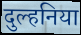
दुल्हनिया